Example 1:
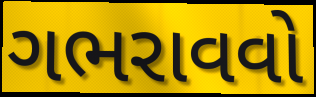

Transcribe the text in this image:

ગભરાવવો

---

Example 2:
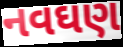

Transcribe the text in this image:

નવઘણ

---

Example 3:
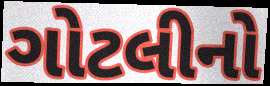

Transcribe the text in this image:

ગોટલીનો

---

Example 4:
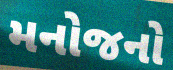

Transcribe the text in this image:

મનોજનો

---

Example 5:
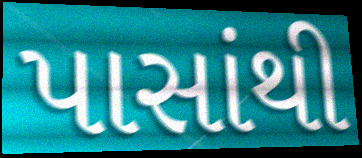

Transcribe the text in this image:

પાસાંથી